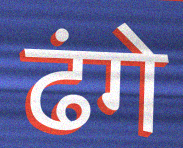
ढंगे